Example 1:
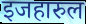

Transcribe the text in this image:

इजहारुल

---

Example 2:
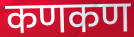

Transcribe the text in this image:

कणकण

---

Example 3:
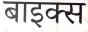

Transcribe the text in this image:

बाइक्स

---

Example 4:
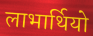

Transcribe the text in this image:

लाभार्थियो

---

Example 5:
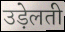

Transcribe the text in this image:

उड़ेलती